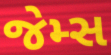
જેમ્સ